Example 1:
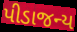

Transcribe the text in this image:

પીડાજન્ય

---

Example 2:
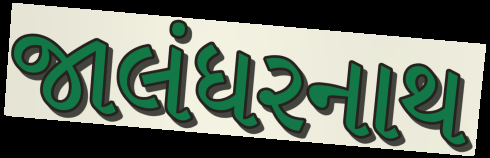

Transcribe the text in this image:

જાલંધરનાથ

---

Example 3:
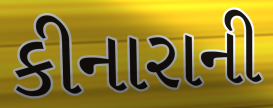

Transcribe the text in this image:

કીનારાની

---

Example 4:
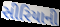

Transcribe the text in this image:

સીરિયાની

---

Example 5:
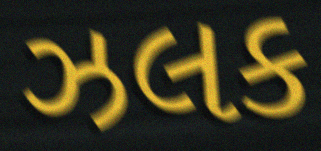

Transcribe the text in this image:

ઝલક